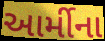
આર્મીના